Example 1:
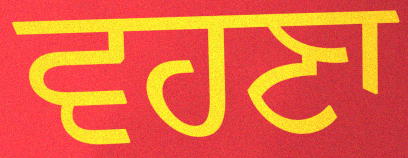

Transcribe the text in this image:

ਵਹਣਾ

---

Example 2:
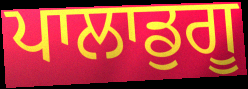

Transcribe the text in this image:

ਪਾਲਾਡੁਗੂ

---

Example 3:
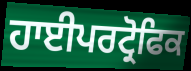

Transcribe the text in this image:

ਹਾਈਪਰਟ੍ਰੋਫਿਕ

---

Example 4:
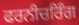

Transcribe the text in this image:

ਫਰਨੀਚਰਿੰਗ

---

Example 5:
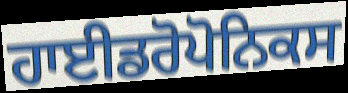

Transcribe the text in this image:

ਹਾਈਡਰੋਪੋਨਿਕਸ